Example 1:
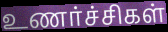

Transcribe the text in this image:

உணர்ச்சிகள்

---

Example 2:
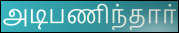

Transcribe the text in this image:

அடிபணிந்தார்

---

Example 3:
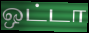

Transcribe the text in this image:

ஒட்டா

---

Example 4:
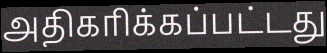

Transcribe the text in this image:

அதிகரிக்கப்பட்டது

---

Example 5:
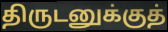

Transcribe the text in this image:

திருடனுக்குத்